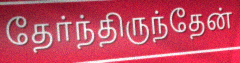
தேர்ந்திருந்தேன்